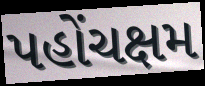
પહોંચક્ષમ